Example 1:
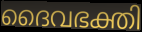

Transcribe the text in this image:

ദൈവഭക്തി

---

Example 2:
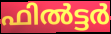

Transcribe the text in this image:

ഫിൽട്ടർ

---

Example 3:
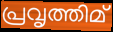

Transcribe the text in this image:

പ്രവൃത്തിമ്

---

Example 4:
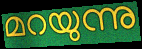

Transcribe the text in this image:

മറയുന്നു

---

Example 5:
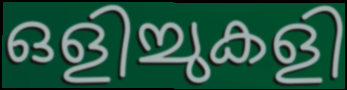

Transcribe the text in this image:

ഒളിച്ചുകളി